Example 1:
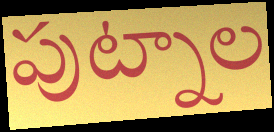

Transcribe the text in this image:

పుట్నాల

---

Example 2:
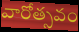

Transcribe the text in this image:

వారోత్సవం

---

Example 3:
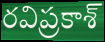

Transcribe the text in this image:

రవిప్రకాశ్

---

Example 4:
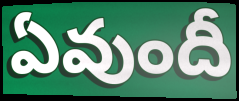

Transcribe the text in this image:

ఏవుందీ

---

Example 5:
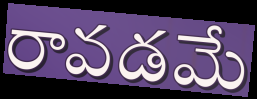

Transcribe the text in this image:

రావడమే